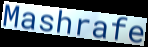
Mashrafe